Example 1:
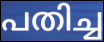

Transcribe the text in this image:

പതിച്ച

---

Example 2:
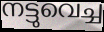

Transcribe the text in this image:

നട്ടുവെച്ച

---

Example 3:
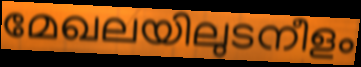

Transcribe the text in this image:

മേഖലയിലുടനീളം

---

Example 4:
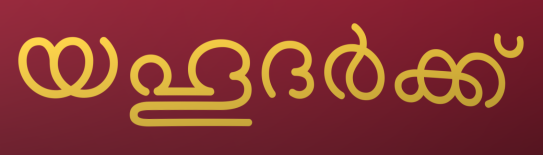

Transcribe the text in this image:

യഹൂദർക്ക്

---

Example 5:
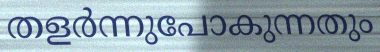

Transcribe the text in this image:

തളർന്നുപോകുന്നതും